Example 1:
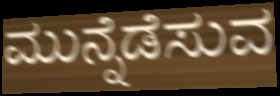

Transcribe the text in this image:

ಮುನ್ನೆಡೆಸುವ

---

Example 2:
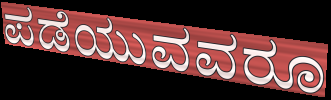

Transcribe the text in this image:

ಪಡೆಯುವವರೂ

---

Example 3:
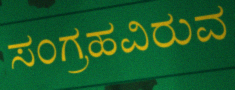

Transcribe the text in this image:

ಸಂಗ್ರಹವಿರುವ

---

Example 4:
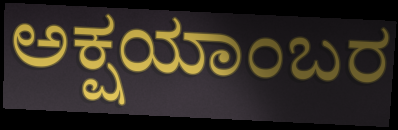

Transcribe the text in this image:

ಅಕ್ಷಯಾಂಬರ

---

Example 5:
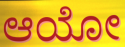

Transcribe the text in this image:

ಆಯೋ